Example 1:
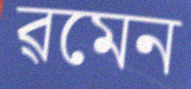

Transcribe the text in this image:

ৱমেন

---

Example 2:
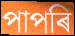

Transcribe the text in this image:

পাপৰি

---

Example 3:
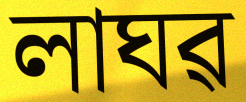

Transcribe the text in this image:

লাঘৱ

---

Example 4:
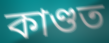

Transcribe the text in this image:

কাণ্ডত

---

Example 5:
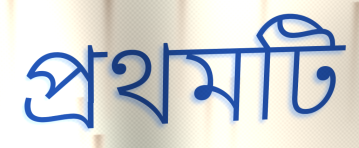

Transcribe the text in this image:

প্ৰথমটি